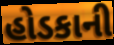
હોડકાની